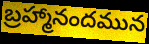
బ్రహ్మానందమున